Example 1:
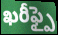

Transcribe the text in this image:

ఖరీఫ్పై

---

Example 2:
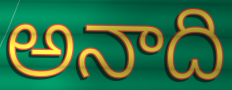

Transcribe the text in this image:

అనాది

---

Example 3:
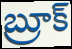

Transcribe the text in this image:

బ్రూక్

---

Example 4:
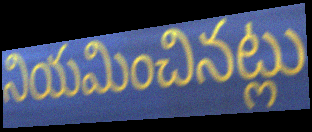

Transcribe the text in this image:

నియమించినట్లు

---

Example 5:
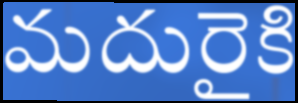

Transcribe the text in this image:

మదురైకి